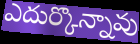
ఎదుర్కొన్నావు